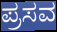
ಪ್ರಸವ